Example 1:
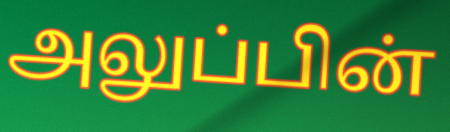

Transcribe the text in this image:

அலுப்பின்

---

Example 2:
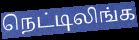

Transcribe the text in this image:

நெட்டிலிங்க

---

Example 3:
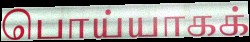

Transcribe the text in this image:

பொய்யாகக்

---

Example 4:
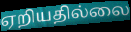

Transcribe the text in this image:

ஏறியதில்லை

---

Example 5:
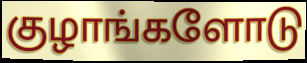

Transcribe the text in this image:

குழாங்களோடு